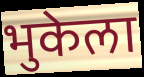
भुकेला